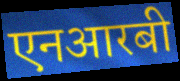
एनआरबी